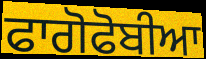
ਫਾਗੋਫੋਬੀਆ